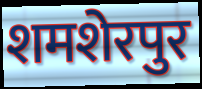
शमशेरपुर